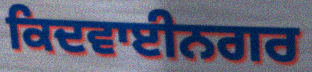
ਕਿਦਵਾਈਨਗਰ